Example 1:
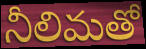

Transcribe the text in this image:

నీలిమతో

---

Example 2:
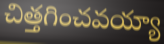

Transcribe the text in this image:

చిత్తగించవయ్యా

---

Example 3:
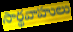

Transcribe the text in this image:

సార్థవాహులు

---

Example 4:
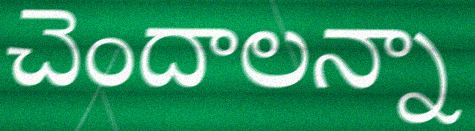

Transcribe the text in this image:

చెందాలన్నా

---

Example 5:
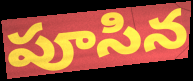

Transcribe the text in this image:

పూసిన